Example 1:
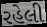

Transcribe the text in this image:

રહેલી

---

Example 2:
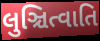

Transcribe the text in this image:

લુઞ્ચિત્વાતિ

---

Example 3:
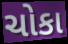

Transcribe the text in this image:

ચોકા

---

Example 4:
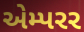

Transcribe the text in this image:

એમ્પરર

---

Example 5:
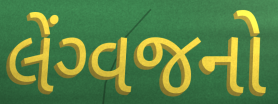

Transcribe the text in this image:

લેંગ્વજનો